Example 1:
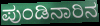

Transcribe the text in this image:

ಪುಂಡಿನಾರಿನ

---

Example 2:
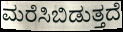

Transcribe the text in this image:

ಮರೆಸಿಬಿಡುತ್ತದೆ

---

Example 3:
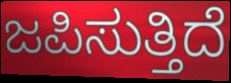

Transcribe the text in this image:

ಜಪಿಸುತ್ತಿದೆ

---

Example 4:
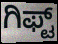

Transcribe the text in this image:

ಗಿಫ್ಟ್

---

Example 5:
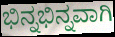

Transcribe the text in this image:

ಭಿನ್ನಭಿನ್ನವಾಗಿ